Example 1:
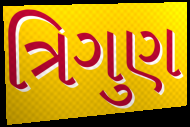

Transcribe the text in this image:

ત્રિગુણ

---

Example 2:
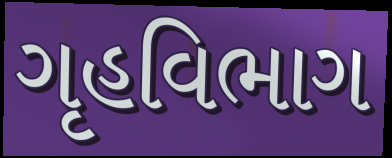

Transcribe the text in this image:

ગૃહવિભાગ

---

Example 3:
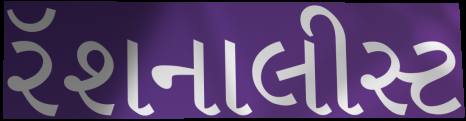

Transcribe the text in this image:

રૅશનાલીસ્ટ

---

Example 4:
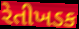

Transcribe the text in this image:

રેતીખડક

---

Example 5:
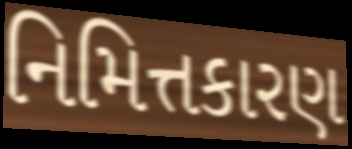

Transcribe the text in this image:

નિમિત્તકારણ